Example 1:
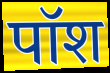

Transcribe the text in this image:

पॉश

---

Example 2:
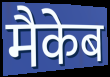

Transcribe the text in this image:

मैकेब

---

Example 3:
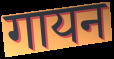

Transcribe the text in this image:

गायन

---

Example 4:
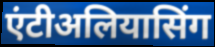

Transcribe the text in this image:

एंटीअलियासिंग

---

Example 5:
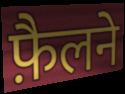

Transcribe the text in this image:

फ़ैलने